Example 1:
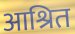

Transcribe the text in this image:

आश्रित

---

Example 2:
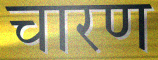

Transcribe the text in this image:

चारण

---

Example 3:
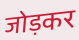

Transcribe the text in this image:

जोड़कर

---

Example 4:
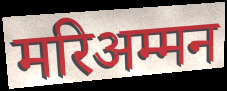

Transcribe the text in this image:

मरिअम्मन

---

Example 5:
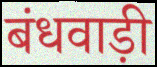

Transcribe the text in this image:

बंधवाड़ी